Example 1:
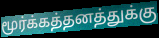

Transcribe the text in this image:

மூர்க்கத்தனத்துக்கு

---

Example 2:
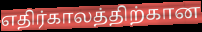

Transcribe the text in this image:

எதிர்காலத்திற்கான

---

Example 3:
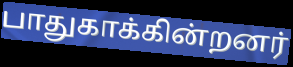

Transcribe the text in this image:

பாதுகாக்கின்றனர்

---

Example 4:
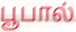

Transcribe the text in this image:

பூபால்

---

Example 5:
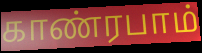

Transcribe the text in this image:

காண்ரபாம்